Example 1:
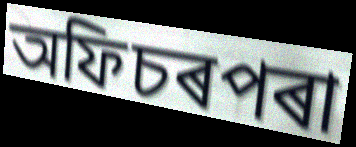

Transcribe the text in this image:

অফিচৰপৰা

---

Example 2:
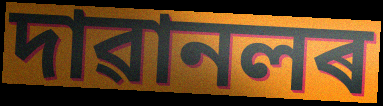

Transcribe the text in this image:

দাৱানলৰ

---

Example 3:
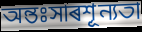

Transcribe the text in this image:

অন্তঃসাৰশূন্যতা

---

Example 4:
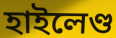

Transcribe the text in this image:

হাইলেণ্ড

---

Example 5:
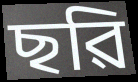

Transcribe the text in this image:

ছৱি